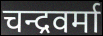
चन्द्रवर्मा